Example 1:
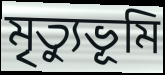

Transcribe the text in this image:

মৃত্যুভূমি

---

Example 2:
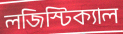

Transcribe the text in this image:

লজিস্টিক্যাল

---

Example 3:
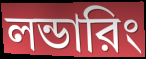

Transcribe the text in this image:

লন্ডারিং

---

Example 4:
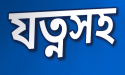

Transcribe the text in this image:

যত্নসহ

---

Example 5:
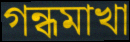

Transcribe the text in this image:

গন্ধমাখা